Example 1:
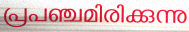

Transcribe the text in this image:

പ്രപഞ്ചമിരിക്കുന്നു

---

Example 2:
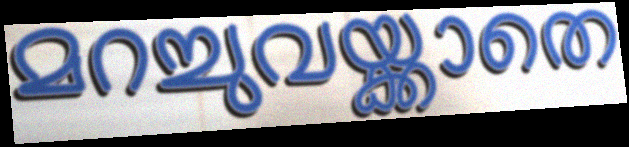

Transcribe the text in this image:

മറച്ചുവയ്ക്കാതെ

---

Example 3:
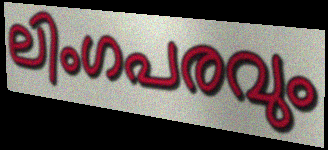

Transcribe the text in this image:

ലിംഗപരവും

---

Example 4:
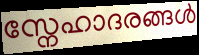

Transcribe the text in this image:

സ്നേഹാദരങ്ങൾ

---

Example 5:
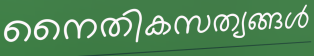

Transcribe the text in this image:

നൈതികസത്യങ്ങൾ